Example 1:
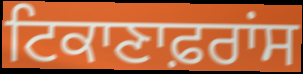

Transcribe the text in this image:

ਟਿਕਾਣਾਫ਼ਰਾਂਸ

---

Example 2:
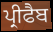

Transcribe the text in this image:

ਪ੍ਰੀਫੈਬ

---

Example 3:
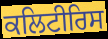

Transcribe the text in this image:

ਕਲਿਟੀਰਿਸ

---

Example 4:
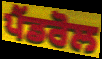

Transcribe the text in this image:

ਪੈਂਡਰੋਲ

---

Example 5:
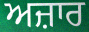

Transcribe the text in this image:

ਅਜ਼ਾਰ